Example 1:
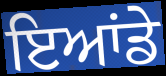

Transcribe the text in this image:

ਇਆਂਡੇ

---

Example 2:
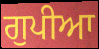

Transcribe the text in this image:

ਗੁਪੀਆ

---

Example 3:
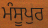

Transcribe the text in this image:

ਮੰਸੂਪੁਰ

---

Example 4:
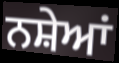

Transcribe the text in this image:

ਨਸ਼ੇਆਂ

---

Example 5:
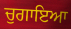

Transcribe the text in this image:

ਚੁਗਾਇਆ